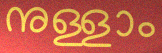
നുള്ളാം